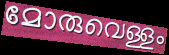
മോരുവെള്ളം